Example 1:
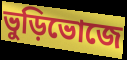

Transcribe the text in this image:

ভুড়িভোজে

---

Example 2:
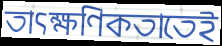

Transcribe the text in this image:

তাৎক্ষণিকতাতেই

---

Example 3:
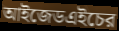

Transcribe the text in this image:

আইজেডএইচের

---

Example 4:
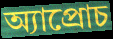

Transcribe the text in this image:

অ্যাপ্রোচ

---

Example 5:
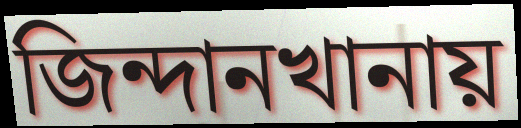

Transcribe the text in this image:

জিন্দানখানায়